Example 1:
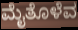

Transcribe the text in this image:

ಮೈತೊಳೆವ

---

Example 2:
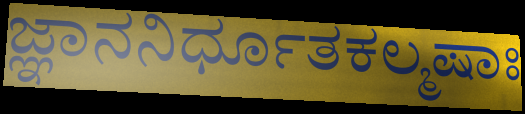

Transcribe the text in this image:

ಜ್ಞಾನನಿರ್ಧೂತಕಲ್ಮಷಾಃ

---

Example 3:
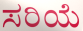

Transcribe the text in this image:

ಸರಿಯೆ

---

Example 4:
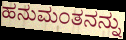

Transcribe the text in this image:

ಹನುಮಂತನನ್ನು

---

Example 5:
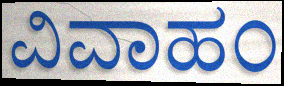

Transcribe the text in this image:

ವಿವಾಹಂ